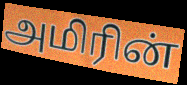
அமிரின்